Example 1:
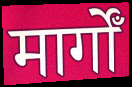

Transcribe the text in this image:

मार्गोँ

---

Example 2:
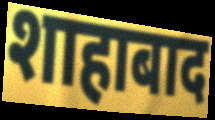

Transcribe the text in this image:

शाहाबाद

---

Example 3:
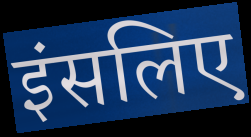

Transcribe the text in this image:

इंसलिए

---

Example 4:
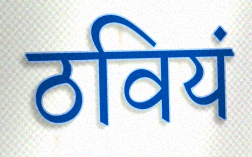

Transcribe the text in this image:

ठवियं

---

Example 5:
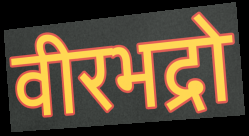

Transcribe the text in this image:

वीरभद्रो